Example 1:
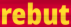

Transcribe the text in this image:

rebut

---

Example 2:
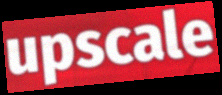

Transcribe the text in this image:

upscale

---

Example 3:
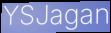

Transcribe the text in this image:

YSJagan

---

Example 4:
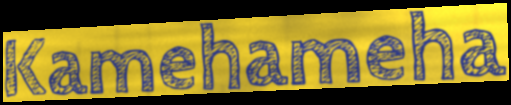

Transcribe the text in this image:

Kamehameha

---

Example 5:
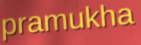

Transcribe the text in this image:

pramukha